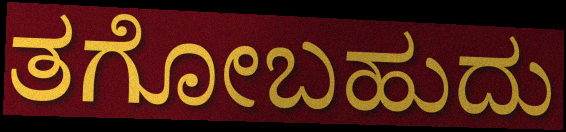
ತಗೋಬಹುದು